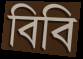
বিবি